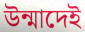
উন্মাদেই